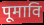
पूमावि